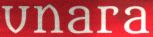
unara